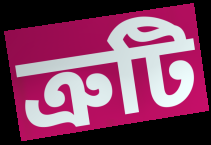
ত্ৰুটি